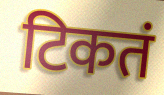
टिकतं